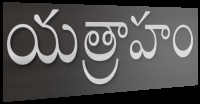
యత్రాహం